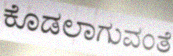
ಕೊಡಲಾಗುವಂತೆ